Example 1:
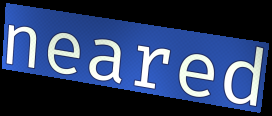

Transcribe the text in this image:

neared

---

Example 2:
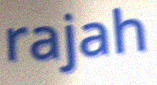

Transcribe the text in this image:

rajah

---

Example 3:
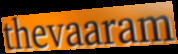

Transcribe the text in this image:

thevaaram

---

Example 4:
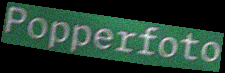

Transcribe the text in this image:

Popperfoto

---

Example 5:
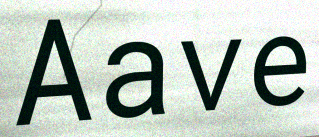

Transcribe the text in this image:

Aave